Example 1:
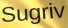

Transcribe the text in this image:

Sugriv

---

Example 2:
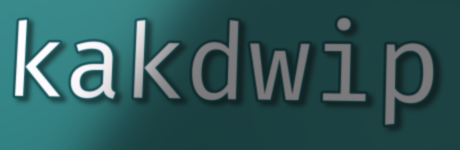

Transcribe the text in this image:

kakdwip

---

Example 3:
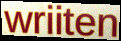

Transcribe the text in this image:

wriiten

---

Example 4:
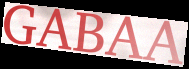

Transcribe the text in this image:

GABAA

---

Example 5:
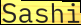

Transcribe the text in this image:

Sashi